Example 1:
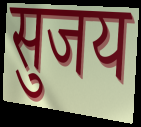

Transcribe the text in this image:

सुजय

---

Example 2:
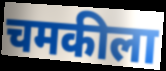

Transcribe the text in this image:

चमकीला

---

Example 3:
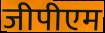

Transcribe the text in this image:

जीपीएम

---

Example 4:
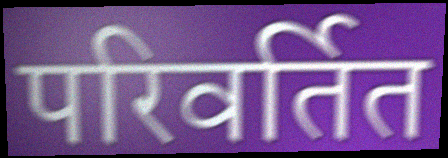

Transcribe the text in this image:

परिवर्तित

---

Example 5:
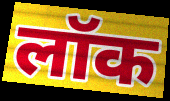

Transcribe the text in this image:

लॉक